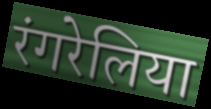
रंगरेलिया